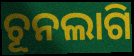
ଚୂନଲାଗି